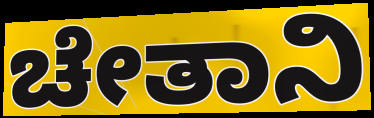
ಚೇತಾನಿ